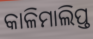
କାଳିମାଲିପ୍ତ